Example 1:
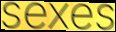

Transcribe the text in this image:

sexes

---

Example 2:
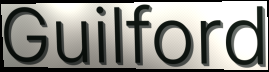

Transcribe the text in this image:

Guilford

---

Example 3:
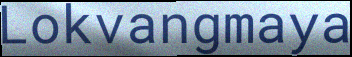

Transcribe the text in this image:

Lokvangmaya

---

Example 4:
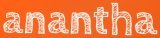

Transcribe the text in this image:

anantha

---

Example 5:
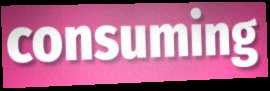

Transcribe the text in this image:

consuming